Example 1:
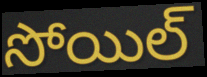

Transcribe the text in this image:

సోయిల్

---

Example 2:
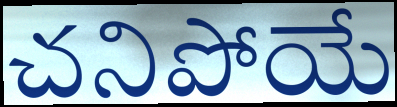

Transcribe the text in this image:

చనిపోయే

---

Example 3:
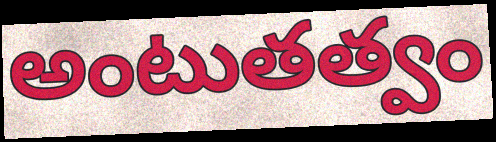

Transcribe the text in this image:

అంటుతత్వం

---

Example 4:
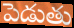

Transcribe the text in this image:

పెడుతు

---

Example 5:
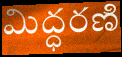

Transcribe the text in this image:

మిద్ధరణి